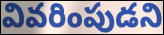
వివరింపుడని